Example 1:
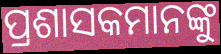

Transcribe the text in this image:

ପ୍ରଶାସକମାନଙ୍କୁ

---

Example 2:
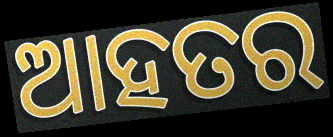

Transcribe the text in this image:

ଆହତର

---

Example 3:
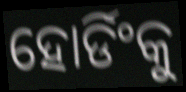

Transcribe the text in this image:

ହୋର୍ଡିଂକୁ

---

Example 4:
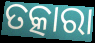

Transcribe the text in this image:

ତତ୍କାରା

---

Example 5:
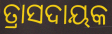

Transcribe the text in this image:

ତ୍ରାସଦାୟକ